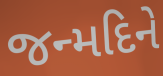
જન્મદિને